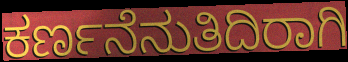
ಕರ್ಣನೆನುತಿದಿರಾಗಿ